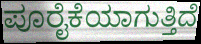
ಪೂರೈಕೆಯಾಗುತ್ತಿದೆ